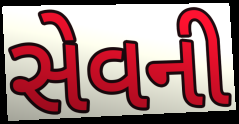
સેવની